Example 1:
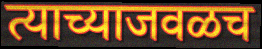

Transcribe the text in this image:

त्याच्याजवळच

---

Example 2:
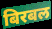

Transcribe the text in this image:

बिरबल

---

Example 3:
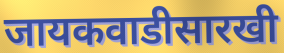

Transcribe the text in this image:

जायकवाडीसारखी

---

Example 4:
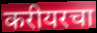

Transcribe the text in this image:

करीयरचा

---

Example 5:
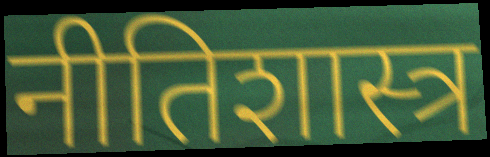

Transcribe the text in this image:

नीतिशास्त्र